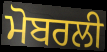
ਮੋਬਰਲੀ